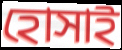
হোসাই